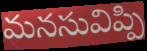
మనసువిప్పి